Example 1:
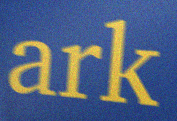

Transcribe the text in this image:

ark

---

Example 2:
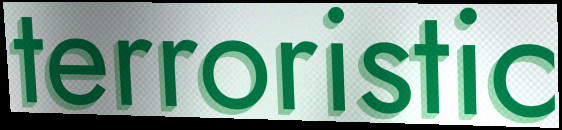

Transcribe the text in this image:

terroristic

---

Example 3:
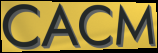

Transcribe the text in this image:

CACM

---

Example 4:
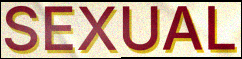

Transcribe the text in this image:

SEXUAL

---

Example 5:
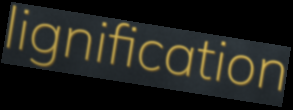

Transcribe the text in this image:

lignification